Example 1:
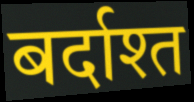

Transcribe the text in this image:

बर्दाश्त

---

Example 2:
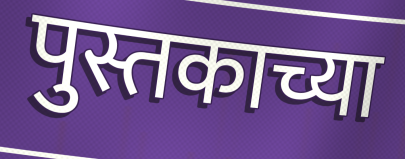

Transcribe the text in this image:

पुस्तकाच्या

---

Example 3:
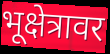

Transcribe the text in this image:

भूक्षेत्रावर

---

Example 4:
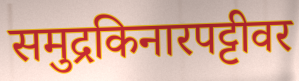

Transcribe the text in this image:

समुद्रकिनारपट्टीवर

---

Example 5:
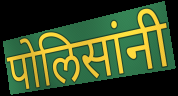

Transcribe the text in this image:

पोलिसांनी